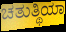
ಚತುತ್ಥಿಯಾ